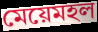
মেয়েমহল